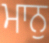
ਮਾਨੁ